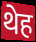
थेह